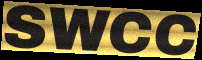
SWCC